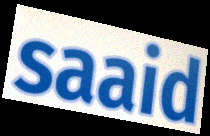
saaid